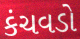
કંચવડો